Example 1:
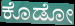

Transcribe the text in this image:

ಕೊಡೋ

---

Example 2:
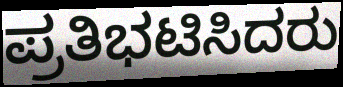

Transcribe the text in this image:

ಪ್ರತಿಭಟಿಸಿದರು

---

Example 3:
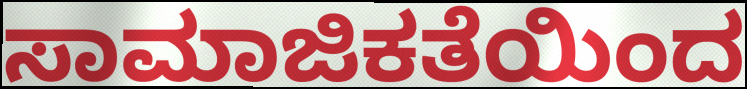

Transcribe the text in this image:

ಸಾಮಾಜಿಕತೆಯಿಂದ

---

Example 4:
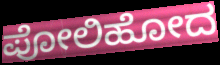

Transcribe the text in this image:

ಪೋಲಿಹೋದ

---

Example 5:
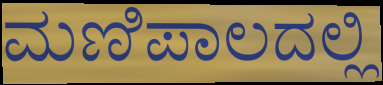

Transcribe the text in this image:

ಮಣಿಪಾಲದಲ್ಲಿ